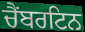
ਚੈਂਬਰਟਿਨ